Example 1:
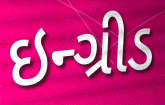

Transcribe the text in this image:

ઇન્ગ્રીડ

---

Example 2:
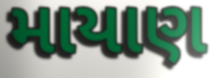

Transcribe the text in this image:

માયાણ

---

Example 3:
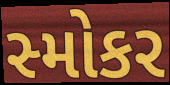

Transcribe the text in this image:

સ્મોકર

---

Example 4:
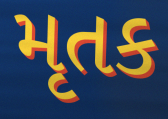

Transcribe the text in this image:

મૃતક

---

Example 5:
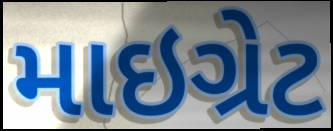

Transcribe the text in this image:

માઇગ્રેટ